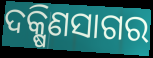
ଦକ୍ଷିଣସାଗର